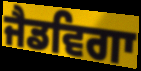
ਜੈਡਵਿਗਾ